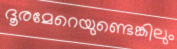
ദൂരമേറെയുണ്ടെങ്കിലും